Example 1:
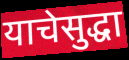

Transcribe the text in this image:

याचेसुद्धा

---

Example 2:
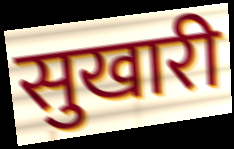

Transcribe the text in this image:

सुखारी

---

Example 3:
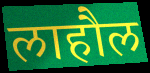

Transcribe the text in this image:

लाहौल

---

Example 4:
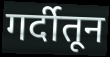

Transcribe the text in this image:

गर्दीतून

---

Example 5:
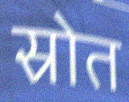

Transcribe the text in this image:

स्रोत